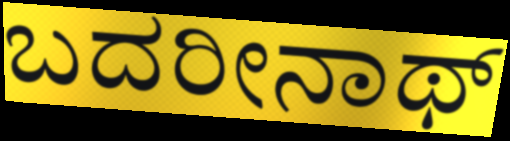
ಬದರೀನಾಥ್